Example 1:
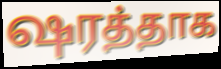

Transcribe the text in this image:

ஷரத்தாக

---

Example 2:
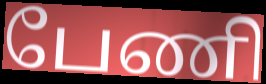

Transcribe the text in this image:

பேணி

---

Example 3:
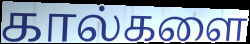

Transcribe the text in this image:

கால்களை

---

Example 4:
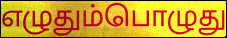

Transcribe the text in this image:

எழுதும்பொழுது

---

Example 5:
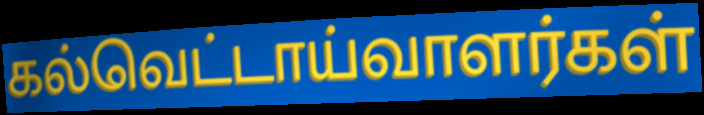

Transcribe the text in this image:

கல்வெட்டாய்வாளர்கள்